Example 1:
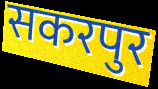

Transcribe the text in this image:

सकरपुर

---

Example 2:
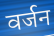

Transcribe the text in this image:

वर्जन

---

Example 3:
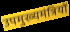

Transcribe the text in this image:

उपमुख्यमंत्रियों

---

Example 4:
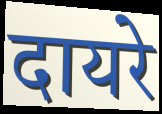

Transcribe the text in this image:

दायरे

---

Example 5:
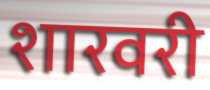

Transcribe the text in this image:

शारवरी